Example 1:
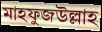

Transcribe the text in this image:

মাহফুজউল্লাহ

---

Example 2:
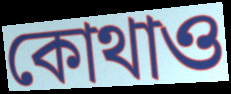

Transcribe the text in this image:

কোথাও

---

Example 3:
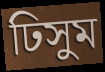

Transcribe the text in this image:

ঢিসুম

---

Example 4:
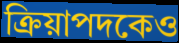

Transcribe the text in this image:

ক্রিয়াপদকেও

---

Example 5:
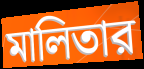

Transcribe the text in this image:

মালিতার